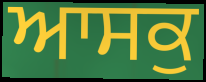
ਆਸਕੁ